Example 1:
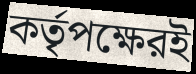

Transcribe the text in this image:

কর্তৃপক্ষেরই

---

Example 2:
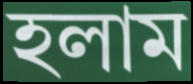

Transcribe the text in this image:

হলাম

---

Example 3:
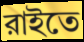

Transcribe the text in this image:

রাইতে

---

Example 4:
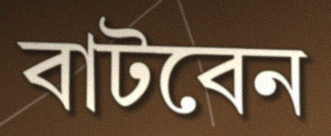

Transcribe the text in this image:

বাটবেন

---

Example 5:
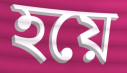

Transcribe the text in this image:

হয়ে